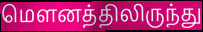
மௌனத்திலிருந்து